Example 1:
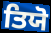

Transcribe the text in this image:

ਤਿਯੋ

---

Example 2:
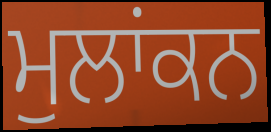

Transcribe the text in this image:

ਮੁਲਾਂਕਨ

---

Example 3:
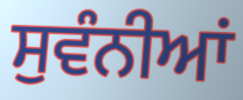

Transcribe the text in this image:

ਸੁਵੰਨੀਆਂ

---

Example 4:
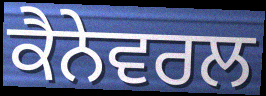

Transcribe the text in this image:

ਕੈਨੇਵਰਲ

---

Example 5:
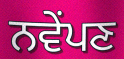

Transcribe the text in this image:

ਨਵੇਂਪਣ